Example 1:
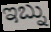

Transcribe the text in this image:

ಇಬ್ನು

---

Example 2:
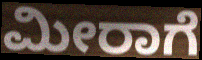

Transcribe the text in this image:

ಮೀರಾಗೆ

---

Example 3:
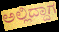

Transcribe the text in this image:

ಅಲ್ಲಿದ್ದಾಗ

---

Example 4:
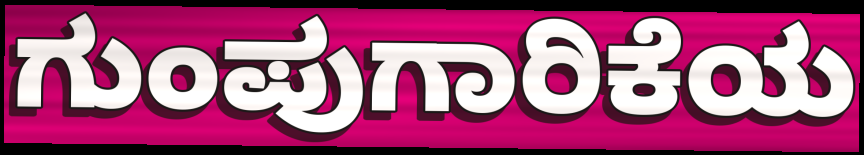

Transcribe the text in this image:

ಗುಂಪುಗಾರಿಕೆಯ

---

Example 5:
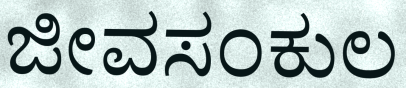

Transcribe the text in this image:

ಜೀವಸಂಕುಲ